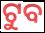
ଟୁବ